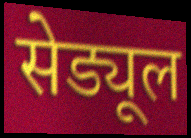
सेड्यूल